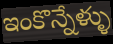
ఇంకొన్నేళ్ళు